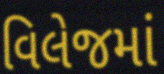
વિલેજમાં